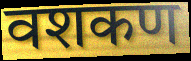
वशकण